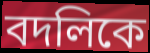
বদলিকে